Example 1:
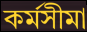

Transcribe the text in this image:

কর্মসীমা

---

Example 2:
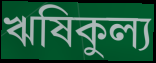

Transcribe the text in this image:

ঋষিকুল্য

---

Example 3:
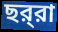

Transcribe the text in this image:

ছর্‌রা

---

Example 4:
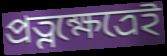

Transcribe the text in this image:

প্রত্নক্ষেত্রেই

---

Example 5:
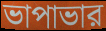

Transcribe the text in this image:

ভাপাভার